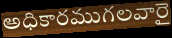
అధికారముగలవారై